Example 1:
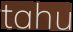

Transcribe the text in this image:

tahu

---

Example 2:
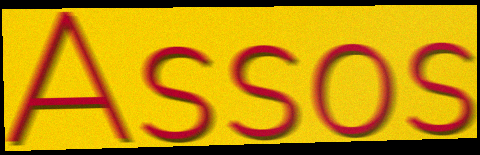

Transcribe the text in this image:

Assos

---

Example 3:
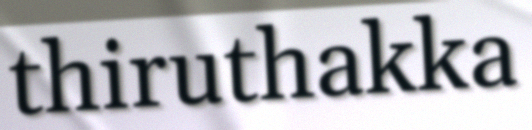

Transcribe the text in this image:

thiruthakka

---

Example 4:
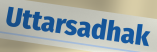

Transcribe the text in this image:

Uttarsadhak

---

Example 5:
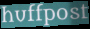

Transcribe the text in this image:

huffpost